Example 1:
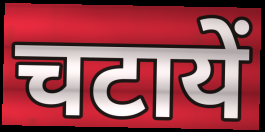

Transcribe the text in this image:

चटायें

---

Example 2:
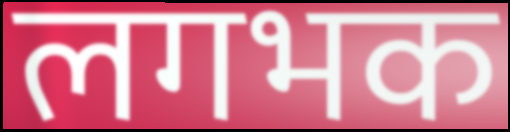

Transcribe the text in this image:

लगभक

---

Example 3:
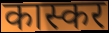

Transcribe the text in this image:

कास्कर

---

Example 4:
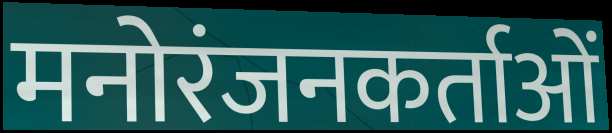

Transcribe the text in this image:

मनोरंजनकर्ताओं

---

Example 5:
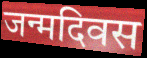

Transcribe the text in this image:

जन्मदिवस